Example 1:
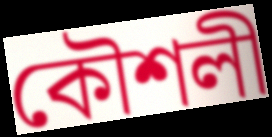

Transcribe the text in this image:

কৌশলী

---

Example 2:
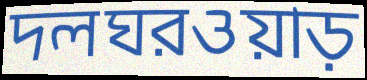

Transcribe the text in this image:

দলঘরওয়াড়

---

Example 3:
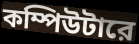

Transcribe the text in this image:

কম্পিউটারে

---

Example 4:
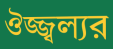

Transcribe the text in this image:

ঔজ্জ্বল্যর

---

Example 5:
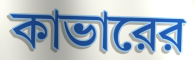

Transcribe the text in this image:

কাভারের